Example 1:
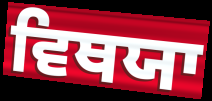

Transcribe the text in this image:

ਵਿਥਯਾ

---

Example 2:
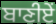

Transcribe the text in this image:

ਬਾਣੀਏਂ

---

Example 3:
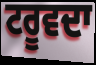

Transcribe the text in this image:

ਟਰੂਵਦਾ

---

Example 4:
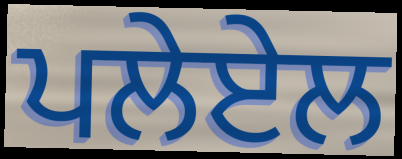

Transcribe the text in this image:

ਪਲੇਏਲ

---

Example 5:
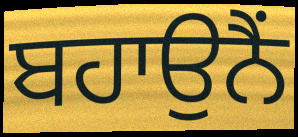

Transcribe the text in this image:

ਬਹਾਉਨੈਂ